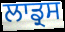
ਲਾਡ੍ਰਸ